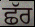
ਛੱਰ